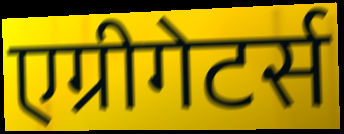
एग्रीगेटर्स